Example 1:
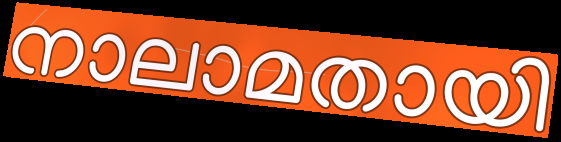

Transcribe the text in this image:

നാലാമതായി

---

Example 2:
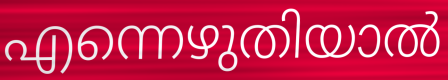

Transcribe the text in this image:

എന്നെഴുതിയാൽ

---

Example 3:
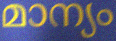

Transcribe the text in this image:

മാന്യം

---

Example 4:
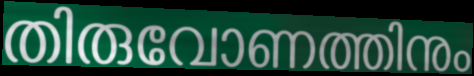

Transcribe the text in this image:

തിരുവോണത്തിനും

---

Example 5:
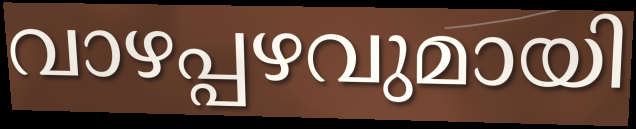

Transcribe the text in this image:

വാഴപ്പഴവുമായി